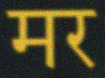
मर